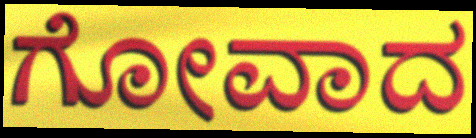
ಗೋವಾದ